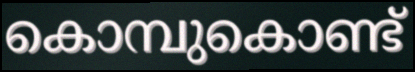
കൊമ്പുകൊണ്ട്